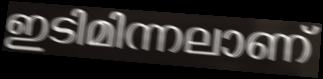
ഇടിമിന്നലാണ്